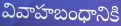
వివాహబంధానికి